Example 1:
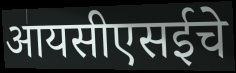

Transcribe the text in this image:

आयसीएसईचे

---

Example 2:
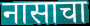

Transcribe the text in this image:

नासाचा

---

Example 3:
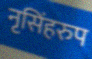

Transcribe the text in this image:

नृसिंहरुप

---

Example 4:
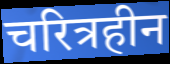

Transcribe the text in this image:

चरित्रहीन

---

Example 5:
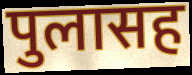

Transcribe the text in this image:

पुलासह